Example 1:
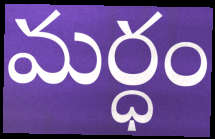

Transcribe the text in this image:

మర్ధం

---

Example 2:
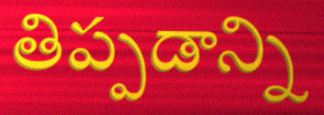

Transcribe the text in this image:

తిప్పడాన్ని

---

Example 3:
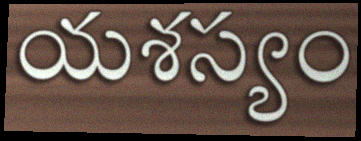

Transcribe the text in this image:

యశస్యం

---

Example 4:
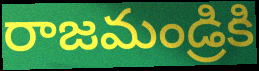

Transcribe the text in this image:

రాజమండ్రికి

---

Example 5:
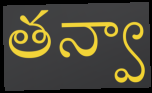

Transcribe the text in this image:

తన్వా